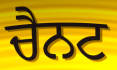
ਚੈਨਟ